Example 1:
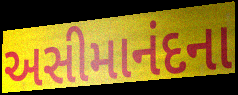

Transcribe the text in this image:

અસીમાનંદના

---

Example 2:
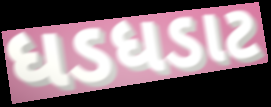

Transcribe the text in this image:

ધડધડાટ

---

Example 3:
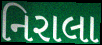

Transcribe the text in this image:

નિરાલા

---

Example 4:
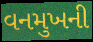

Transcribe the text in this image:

વનમુખની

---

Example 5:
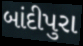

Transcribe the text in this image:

બાંદીપુરા